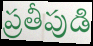
ప్రతీపుడి